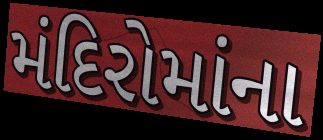
મંદિરોમાંના